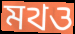
মথও